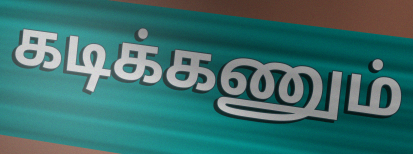
கடிக்கணும்